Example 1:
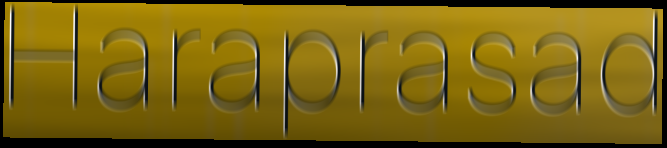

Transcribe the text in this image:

Haraprasad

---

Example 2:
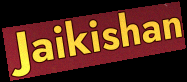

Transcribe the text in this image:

Jaikishan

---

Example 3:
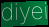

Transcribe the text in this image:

diyei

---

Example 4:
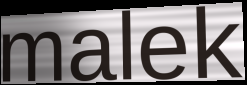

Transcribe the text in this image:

malek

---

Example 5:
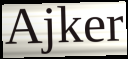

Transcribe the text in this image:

Ajker